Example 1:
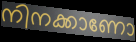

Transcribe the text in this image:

നിനക്കാണോ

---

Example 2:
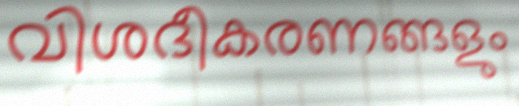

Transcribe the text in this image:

വിശദീകരണങ്ങളും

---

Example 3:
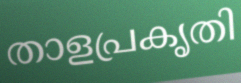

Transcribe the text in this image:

താളപ്രകൃതി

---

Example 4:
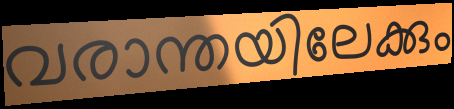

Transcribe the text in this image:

വരാന്തയിലേക്കും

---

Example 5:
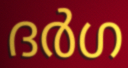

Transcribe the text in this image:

ദർഗ